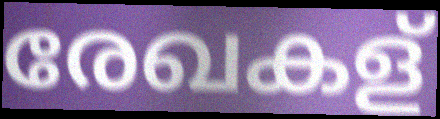
രേഖകള്